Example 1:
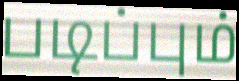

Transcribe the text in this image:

படிப்பும்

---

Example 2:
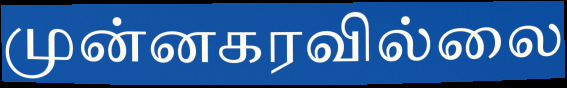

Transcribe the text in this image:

முன்னகரவில்லை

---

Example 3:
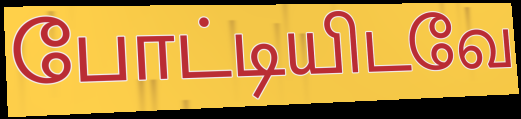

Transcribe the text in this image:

போட்டியிடவே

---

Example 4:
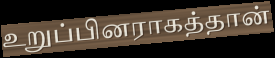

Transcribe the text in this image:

உறுப்பினராகத்தான்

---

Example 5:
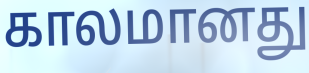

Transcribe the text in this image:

காலமானது